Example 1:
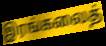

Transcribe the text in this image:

இரங்கலைத்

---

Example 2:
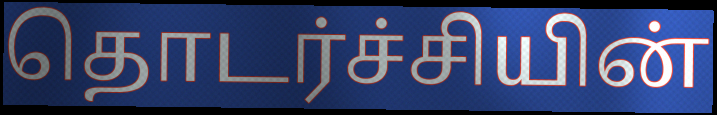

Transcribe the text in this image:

தொடர்ச்சியின்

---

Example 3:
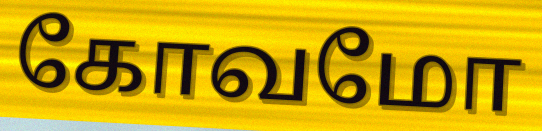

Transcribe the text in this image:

கோவமோ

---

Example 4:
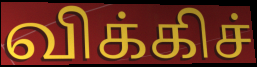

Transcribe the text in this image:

விக்கிச்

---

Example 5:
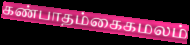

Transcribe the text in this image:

கண்பாதம்கைகமலம்